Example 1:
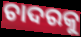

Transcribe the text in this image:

ଚାଦରକୁ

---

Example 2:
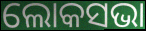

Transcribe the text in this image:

ଲୋକସଭା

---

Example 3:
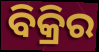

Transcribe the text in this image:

ବିକ୍ରିର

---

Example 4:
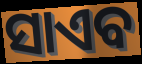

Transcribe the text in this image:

ସାଏବ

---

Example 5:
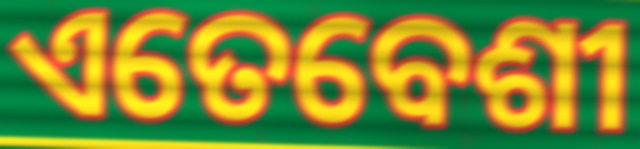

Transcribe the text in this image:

ଏତେବେଶୀ